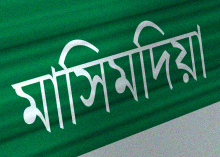
মাসিমদিয়া